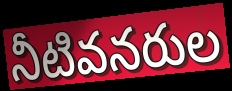
నీటివనరుల